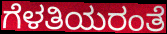
ಗೆಳತಿಯರಂತೆ